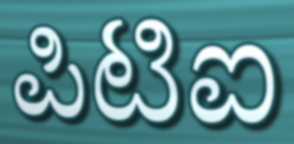
ಪಿಟಿಐ